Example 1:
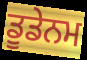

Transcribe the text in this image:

ਡੂਡੇਨਮ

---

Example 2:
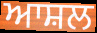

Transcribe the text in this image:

ਆਸ਼ਲ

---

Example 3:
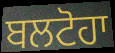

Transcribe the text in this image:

ਬਲਟੋਹਾ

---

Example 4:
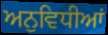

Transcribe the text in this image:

ਅਨੁਵਿਧੀਆਂ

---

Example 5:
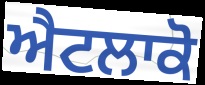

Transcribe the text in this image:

ਐਟਲਾਕੋ